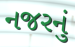
નજરનું